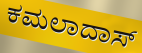
ಕಮಲಾದಾಸ್